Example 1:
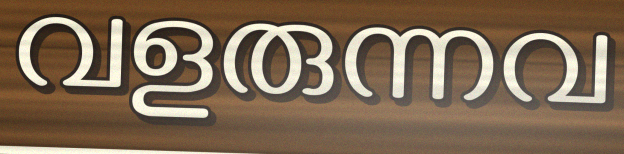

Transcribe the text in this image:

വളരുന്നവ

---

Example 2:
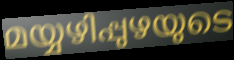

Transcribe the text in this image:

മയ്യഴിപ്പുഴയുടെ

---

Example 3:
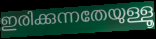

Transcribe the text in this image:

ഇരിക്കുന്നതേയുള്ളൂ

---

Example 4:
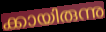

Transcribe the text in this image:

ക്കായിരുന്നു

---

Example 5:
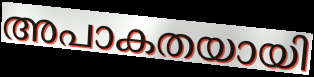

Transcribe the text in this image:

അപാകതയായി